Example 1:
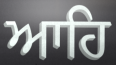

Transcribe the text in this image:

ਆਹਿ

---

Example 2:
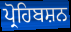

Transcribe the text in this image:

ਪ੍ਰੋਹਿਬਸ਼ਨ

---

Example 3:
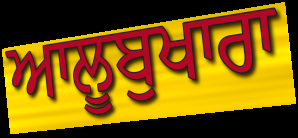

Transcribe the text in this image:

ਆਲੂਬੁਖਾਰਾ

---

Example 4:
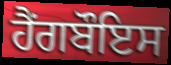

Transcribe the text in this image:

ਹੈਂਗਬੌਇਸ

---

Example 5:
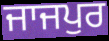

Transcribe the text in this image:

ਜਾਜਪੁਰ